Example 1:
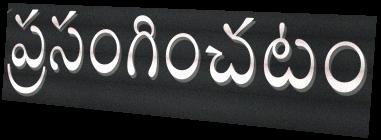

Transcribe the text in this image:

ప్రసంగించటం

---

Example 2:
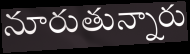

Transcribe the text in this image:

నూరుతున్నారు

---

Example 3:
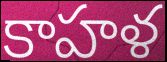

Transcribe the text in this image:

కాహళ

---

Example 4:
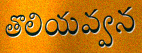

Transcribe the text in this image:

తొలియవ్వన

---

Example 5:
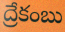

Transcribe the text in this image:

ద్రేకంబు